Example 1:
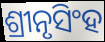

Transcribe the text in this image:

ଶ୍ରୀନୃସିଂହ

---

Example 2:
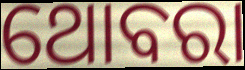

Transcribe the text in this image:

ଥୋବରା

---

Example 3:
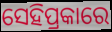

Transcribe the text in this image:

ସେହିପ୍ରକାରେ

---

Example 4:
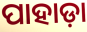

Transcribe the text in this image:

ପାହାଡ଼ା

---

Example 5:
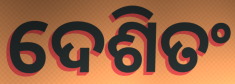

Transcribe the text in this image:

ଦେଶିତଂ